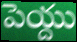
పెయ్దు